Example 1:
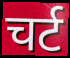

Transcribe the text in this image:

चर्ट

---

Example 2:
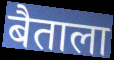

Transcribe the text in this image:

बैताला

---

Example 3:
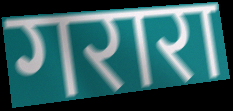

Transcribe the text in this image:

गरारा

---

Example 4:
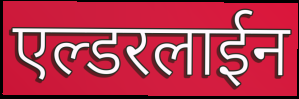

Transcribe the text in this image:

एल्डरलाईन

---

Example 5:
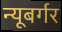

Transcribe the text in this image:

न्यूबर्गर